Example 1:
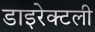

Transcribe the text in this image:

डाइरेक्टली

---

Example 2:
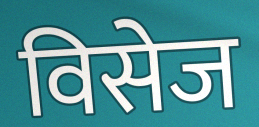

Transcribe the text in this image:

विसेज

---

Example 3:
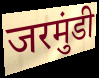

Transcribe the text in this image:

जरमुंडी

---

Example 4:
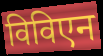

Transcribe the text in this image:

विविएन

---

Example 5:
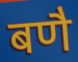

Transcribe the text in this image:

बणै